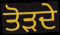
ਤੋੜਦੇ